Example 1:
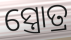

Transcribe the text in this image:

ସ୍ତ୍ରୋତ୍ର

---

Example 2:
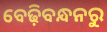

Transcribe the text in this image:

ବେଢ଼ିବନ୍ଧନରୁ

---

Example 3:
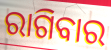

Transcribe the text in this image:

ରାଗିବାର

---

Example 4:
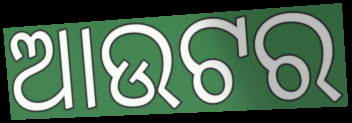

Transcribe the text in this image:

ଆଉଟର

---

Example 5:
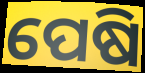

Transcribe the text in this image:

ପେଷି